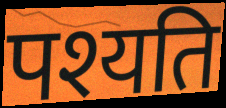
पश्यति